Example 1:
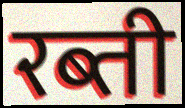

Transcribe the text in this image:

रब्ती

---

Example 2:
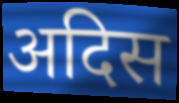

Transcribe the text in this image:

अदिस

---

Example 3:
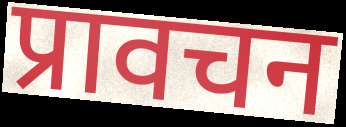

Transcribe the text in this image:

प्रावचन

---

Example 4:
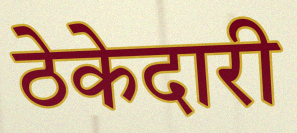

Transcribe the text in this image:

ठेकेदारी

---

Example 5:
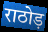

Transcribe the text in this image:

राठोड़